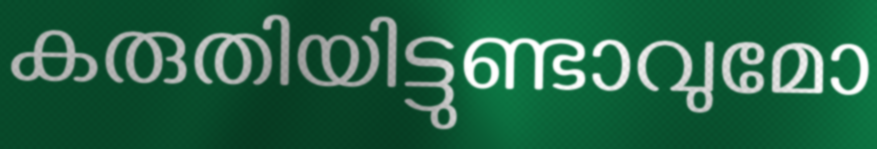
കരുതിയിട്ടുണ്ടാവുമോ